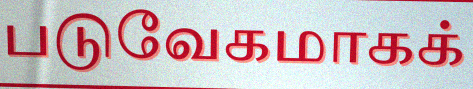
படுவேகமாகக்